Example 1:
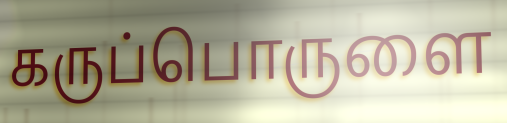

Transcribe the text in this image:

கருப்பொருளை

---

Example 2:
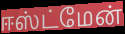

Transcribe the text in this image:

ஈஸ்ட்மேன்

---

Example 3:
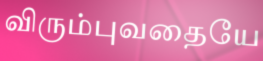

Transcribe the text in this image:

விரும்புவதையே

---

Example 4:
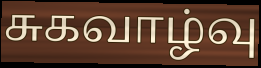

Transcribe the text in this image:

சுகவாழ்வு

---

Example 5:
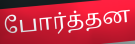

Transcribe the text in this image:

போர்த்தன